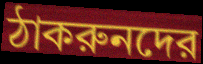
ঠাকরুনদের